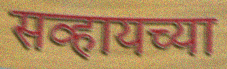
सव्हायच्या